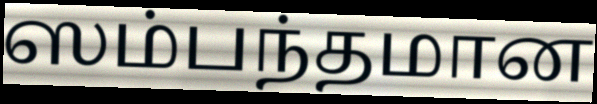
ஸம்பந்தமான